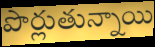
పొర్లుతున్నాయి